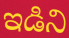
ఇడిని